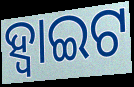
ହ୍ବାଇଟ